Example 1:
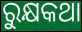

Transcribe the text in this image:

ରୁକ୍ଷକଥା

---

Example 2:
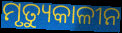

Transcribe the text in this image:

ମୃତ୍ୟୁକାଳୀନ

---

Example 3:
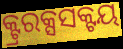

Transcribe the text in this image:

କ୍ଟ୍ରରକ୍ସସକ୍ଟୟ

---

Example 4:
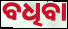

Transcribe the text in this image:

ବଧିବା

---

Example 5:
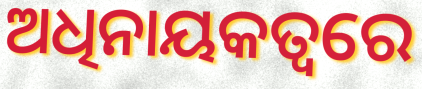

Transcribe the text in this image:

ଅଧିନାୟକତ୍ବରେ